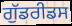
ਗੁੱਡਰੀਡਸ